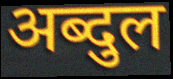
अब्दुल